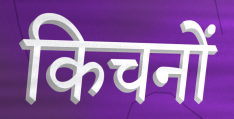
किचनों